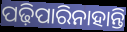
ପଢ଼ିପାରିନାହାନ୍ତି